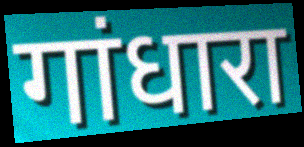
गांधारा